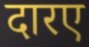
दारए